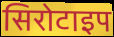
सिरोटाइप